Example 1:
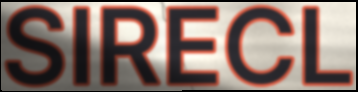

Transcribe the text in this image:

SIRECL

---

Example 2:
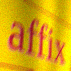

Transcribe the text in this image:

affix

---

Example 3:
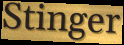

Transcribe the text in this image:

Stinger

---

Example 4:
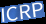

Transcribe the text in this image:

ICRP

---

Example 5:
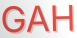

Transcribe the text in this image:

GAH